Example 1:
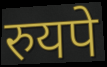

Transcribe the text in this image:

रुयपे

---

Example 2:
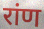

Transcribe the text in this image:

रांण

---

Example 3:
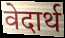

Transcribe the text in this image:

वेदार्थ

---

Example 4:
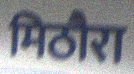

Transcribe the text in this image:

मिठौरा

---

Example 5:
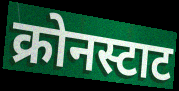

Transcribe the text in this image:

क्रोनस्टाट